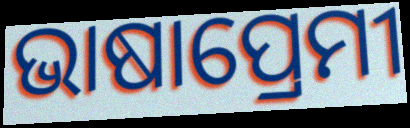
ଭାଷାପ୍ରେମୀ